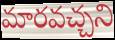
మారవచ్చని